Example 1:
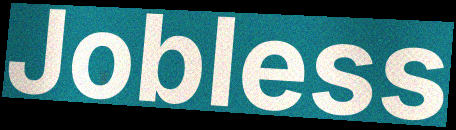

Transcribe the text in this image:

Jobless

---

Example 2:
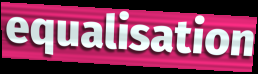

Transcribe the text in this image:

equalisation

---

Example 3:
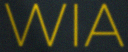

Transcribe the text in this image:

WIA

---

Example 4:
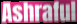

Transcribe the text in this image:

Ashraful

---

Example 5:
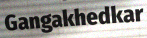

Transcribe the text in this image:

Gangakhedkar